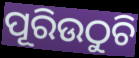
ପୂରିଉଠୁଚି